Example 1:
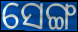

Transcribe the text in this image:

ସେଙ୍ଗ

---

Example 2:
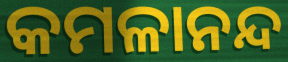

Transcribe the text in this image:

କମଳାନନ୍ଦ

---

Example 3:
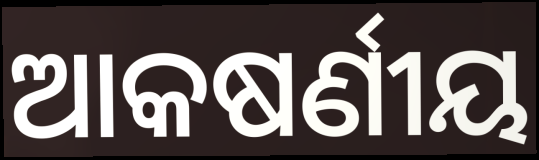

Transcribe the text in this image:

ଆକଷର୍ଣୀୟ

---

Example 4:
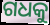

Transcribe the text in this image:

ଗଧକୁ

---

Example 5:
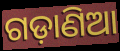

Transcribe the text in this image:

ଗଡ଼ାଣିଆ